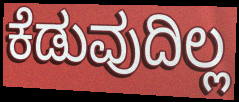
ಕೆಡುವುದಿಲ್ಲ